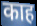
काह